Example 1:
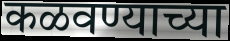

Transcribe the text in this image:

कळवण्याच्या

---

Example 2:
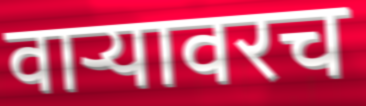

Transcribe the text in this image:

वाऱ्यावरच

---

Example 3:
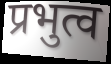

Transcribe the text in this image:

प्रभुत्व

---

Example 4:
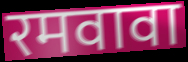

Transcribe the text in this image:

रमवावा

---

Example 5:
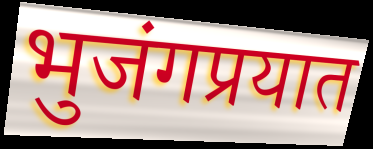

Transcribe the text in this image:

भुजंगप्रयात